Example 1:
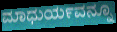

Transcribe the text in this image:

ಮಾಧುರ್ಯವನ್ನೂ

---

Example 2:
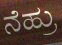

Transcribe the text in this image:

ನೆಹ್ರು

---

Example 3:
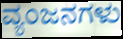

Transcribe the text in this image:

ವ್ಯಂಜನಗಳು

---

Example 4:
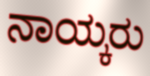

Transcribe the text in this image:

ನಾಯ್ಕರು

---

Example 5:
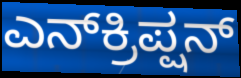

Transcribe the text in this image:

ಎನ್‌ಕ್ರಿಪ್ಷನ್